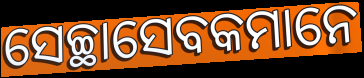
ସେଚ୍ଛାସେବକମାନେ